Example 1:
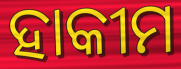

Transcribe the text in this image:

ହାକୀମ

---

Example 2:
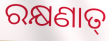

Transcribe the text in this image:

ରକ୍ଷଣାତ୍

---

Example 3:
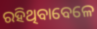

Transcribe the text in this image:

ରହିଥିବାବେଳେ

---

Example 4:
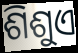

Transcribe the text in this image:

ଶିଶୁଏ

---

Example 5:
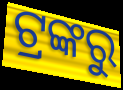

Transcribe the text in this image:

ଟ୍ରଙ୍କରୁ